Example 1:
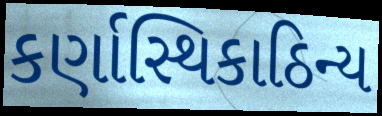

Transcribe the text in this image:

કર્ણાસ્થિકાઠિન્ય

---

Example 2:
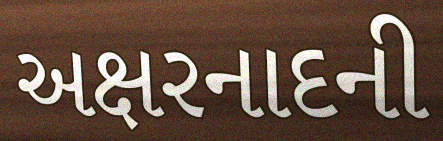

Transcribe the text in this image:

અક્ષરનાદની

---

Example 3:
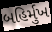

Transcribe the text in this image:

બહિર્મુખ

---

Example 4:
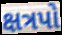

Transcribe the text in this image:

ક્ષત્રપો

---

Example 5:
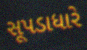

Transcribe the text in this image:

સૂપડાધારે